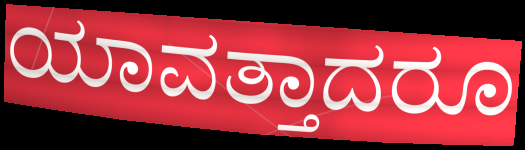
ಯಾವತ್ತಾದರೂ